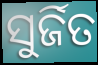
ସୁର୍ଜିତ